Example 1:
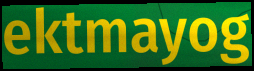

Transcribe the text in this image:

ektmayog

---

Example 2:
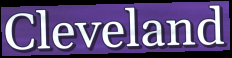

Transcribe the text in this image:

Cleveland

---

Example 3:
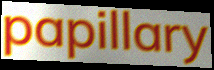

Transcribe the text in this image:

papillary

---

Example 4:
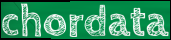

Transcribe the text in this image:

chordata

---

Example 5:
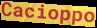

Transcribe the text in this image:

Cacioppo